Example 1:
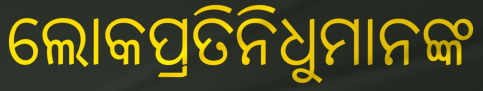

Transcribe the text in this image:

ଲୋକପ୍ରତିନିଧୁମାନଙ୍କ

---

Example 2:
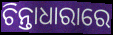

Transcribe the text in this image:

ଚିନ୍ତାଧାରାରେ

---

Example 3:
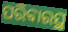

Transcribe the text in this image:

ପରିବାରସ୍ଥ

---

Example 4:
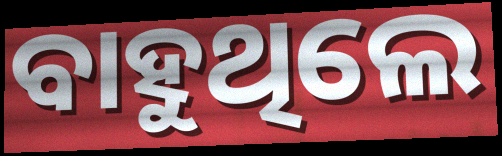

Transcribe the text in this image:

ବାହୁଥିଲେ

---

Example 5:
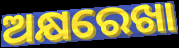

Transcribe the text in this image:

ଅକ୍ଷରେଖା